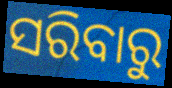
ସରିବାରୁ